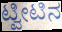
ಟ್ವೀಟಿನ